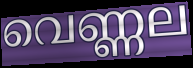
വെണ്ണല